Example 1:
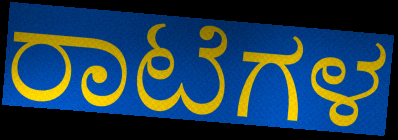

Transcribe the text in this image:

ರಾಟೆಗಳ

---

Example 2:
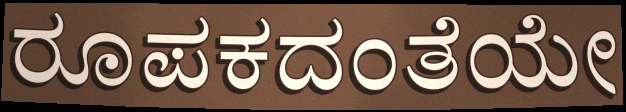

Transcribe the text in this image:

ರೂಪಕದಂತೆಯೇ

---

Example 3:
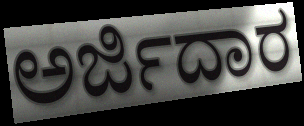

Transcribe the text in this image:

ಅರ್ಜಿದಾರ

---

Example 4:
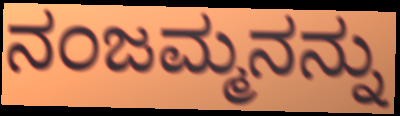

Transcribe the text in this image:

ನಂಜಮ್ಮನನ್ನು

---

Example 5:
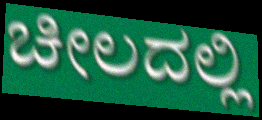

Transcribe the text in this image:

ಚೀಲದಲ್ಲಿ